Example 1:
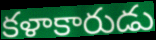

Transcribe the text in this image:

కళాకారుడు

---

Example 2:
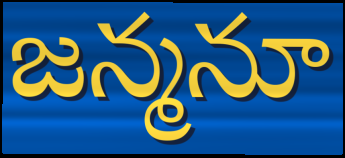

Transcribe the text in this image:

జన్మనూ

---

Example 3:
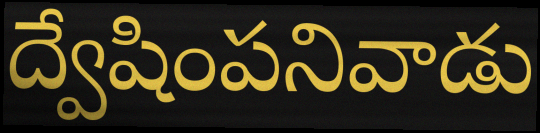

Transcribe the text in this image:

ద్వేషింపనివాడు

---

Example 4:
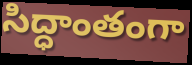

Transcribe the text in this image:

సిద్ధాంతంగా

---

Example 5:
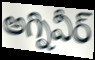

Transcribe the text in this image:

అగ్నివీర్